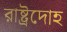
রাষ্ট্রদোহ